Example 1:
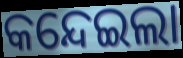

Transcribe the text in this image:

କନ୍ଦେଇଲା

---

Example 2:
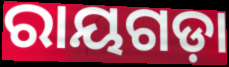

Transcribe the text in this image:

ରାୟଗଡ଼ା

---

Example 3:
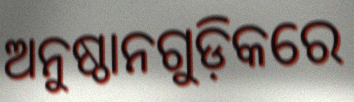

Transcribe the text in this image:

ଅନୁଷ୍ଠାନଗୁଡ଼ିକରେ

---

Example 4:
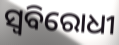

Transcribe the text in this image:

ସ୍ୱବିରୋଧୀ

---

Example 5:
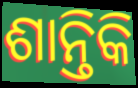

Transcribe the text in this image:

ଶାନ୍ତିକି